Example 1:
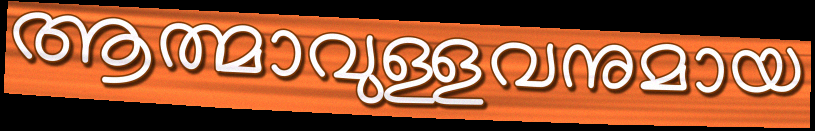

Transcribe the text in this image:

ആത്മാവുള്ളവനുമായ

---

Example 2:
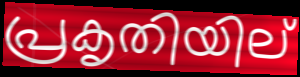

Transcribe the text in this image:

പ്രകൃതിയില്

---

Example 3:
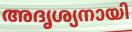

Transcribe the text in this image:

അദൃശ്യനായി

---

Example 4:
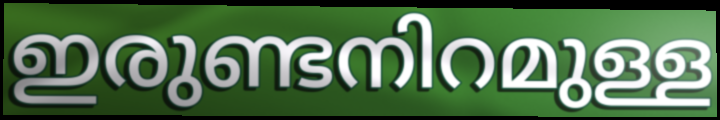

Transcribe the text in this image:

ഇരുണ്ടനിറമുള്ള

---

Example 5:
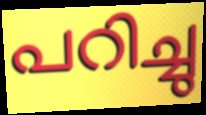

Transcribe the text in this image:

പറിച്ചു